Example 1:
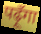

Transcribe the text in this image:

पढ़ूँगा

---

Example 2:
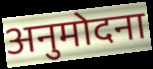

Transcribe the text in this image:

अनुमोदना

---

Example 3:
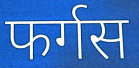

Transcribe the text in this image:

फर्गस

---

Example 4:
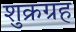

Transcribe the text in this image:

शुक्रग्रह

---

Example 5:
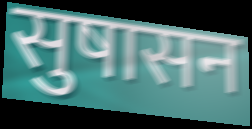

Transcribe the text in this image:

सुषासन